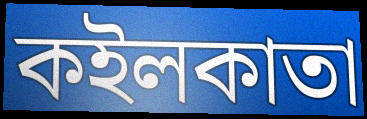
কইলকাতা